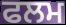
ਫਲਮ